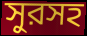
সুরসহ